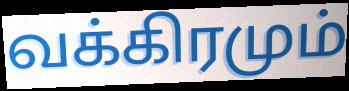
வக்கிரமும்